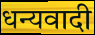
धन्यवादी